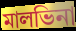
মালভিনা